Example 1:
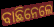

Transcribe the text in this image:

ବାଛିନେଲେ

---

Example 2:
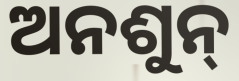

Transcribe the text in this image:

ଅନଶୁନ୍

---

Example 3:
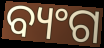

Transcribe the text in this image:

ବ୍ୟଂଗ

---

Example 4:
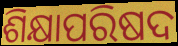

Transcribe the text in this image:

ଶିକ୍ଷାପରିଷଦ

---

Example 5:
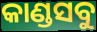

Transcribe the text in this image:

କାଣ୍ଡସବୁ